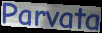
Parvata